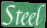
Steel